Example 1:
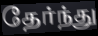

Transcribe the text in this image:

தேர்ந்து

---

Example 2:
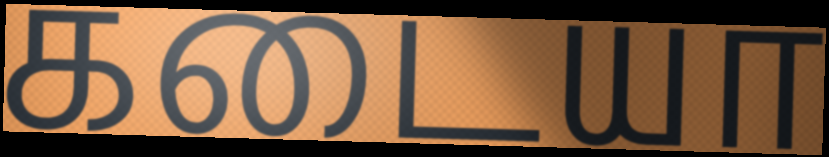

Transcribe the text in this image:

கடையா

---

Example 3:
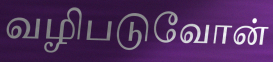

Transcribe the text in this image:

வழிபடுவோன்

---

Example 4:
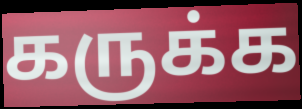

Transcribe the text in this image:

கருக்க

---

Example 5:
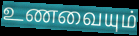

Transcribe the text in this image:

உணவையும்